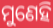
ମୁଣେହି